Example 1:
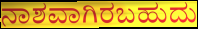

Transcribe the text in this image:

ನಾಶವಾಗಿರಬಹುದು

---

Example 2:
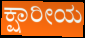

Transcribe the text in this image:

ಕ್ಷಾರೀಯ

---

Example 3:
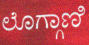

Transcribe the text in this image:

ಲೊಗ್ಗಾಣಿ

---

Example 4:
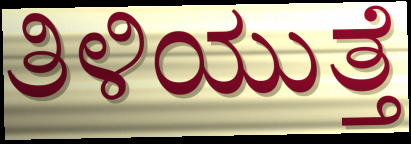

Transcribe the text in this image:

ತಿಳಿಯುತ್ತೆ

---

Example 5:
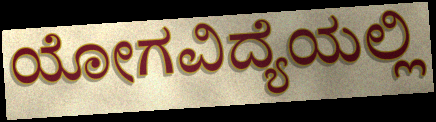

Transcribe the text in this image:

ಯೋಗವಿದ್ಯೆಯಲ್ಲಿ